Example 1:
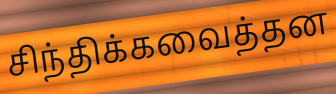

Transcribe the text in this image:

சிந்திக்கவைத்தன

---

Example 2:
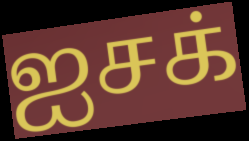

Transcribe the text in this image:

ஐசக்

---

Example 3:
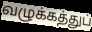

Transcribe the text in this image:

வழுக்கத்துப்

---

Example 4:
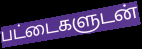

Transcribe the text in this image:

பட்டைகளுடன்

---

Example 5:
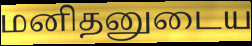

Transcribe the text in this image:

மனிதனுடைய